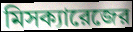
মিসক্যারেজের